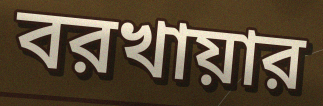
বরখায়ার